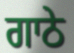
ਗਾਠੇ